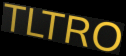
TLTRO